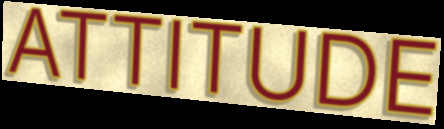
ATTITUDE